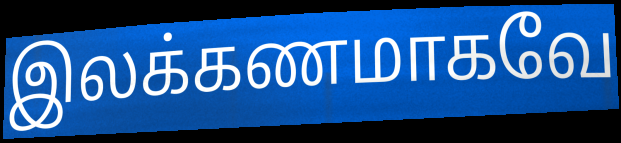
இலக்கணமாகவே